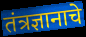
तंत्रज्ञानाचे